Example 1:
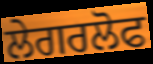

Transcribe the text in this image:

ਲੇਗਰਲੋਫ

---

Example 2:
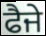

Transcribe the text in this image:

ਫੈਜੇ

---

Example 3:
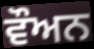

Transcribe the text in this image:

ਵੌਅਨ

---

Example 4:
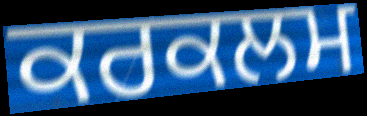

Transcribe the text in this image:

ਕਰਕਲਮ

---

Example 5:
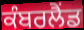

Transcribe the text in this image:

ਕੰਬਰਲੈਂਡ